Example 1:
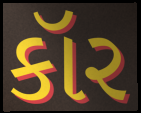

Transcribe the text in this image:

કૉર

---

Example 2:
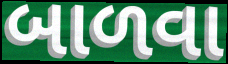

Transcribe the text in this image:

બાળવા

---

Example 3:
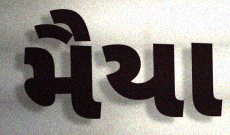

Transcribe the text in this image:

મૈયા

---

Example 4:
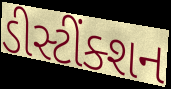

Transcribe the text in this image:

ડીસ્ટીંક્શન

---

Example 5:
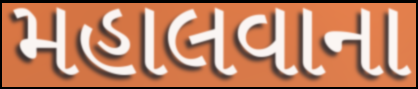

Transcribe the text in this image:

મહાલવાના